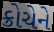
ક્રોચેને